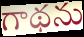
గాథను